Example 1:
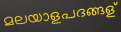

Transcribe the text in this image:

മലയാളപദങ്ങള്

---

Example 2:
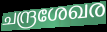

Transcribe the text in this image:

ചന്ദ്രശേഖര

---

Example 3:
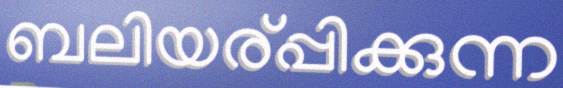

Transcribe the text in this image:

ബലിയര്പ്പിക്കുന്ന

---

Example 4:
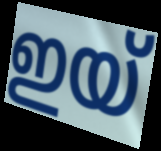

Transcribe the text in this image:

ഇയ്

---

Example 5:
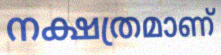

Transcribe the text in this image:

നക്ഷത്രമാണ്